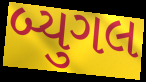
બ્યુગલ